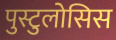
पुस्टुलोसिस